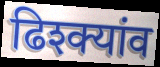
ढिश्क्यांव